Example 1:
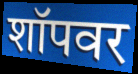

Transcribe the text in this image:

शॉपवर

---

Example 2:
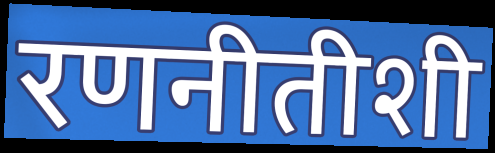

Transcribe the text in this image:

रणनीतीशी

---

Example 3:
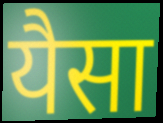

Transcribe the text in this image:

यैसा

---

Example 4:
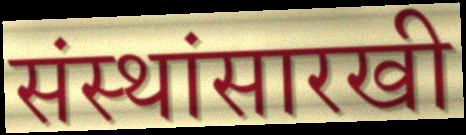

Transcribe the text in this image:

संस्थांसारखी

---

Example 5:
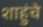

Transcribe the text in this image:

शाहुंचे